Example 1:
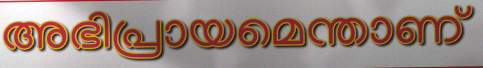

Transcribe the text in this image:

അഭിപ്രായമെന്താണ്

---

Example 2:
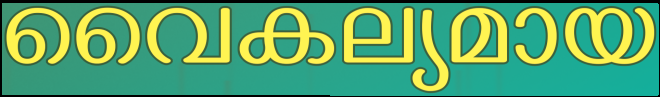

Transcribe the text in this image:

വൈകല്യമായ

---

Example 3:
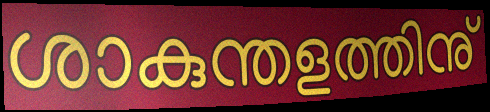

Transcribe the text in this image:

ശാകുന്തളത്തിനു്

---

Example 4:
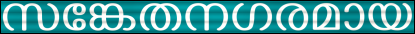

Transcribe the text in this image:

സങ്കേതനഗരമായ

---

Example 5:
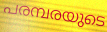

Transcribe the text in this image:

പരമ്പരയുടെ